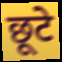
छूटे